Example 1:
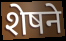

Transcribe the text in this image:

शेषने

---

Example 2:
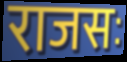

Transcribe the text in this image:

राजसः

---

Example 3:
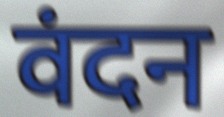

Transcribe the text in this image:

वंदन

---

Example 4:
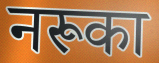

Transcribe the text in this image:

नरूका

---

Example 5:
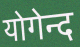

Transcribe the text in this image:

योगेन्द